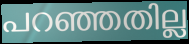
പറഞ്ഞതില്ല